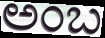
ಅಂಬ